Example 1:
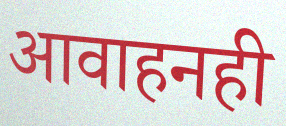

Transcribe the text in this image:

आवाहनही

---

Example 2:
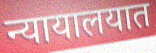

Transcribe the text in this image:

न्यायालयात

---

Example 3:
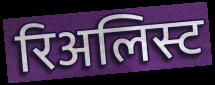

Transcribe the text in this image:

रिअलिस्ट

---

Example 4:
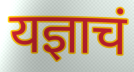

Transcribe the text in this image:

यज्ञाचं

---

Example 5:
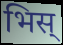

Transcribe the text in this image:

भिस्